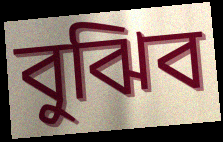
বুঝিব